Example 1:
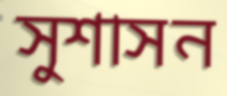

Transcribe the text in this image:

সুশাসন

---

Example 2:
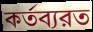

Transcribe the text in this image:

কর্তব্যরত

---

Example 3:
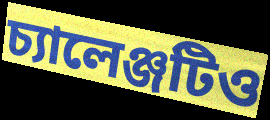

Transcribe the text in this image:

চ্যালেঞ্জটিও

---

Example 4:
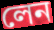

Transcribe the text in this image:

লেন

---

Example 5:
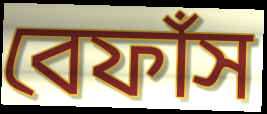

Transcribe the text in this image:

বেফাঁস